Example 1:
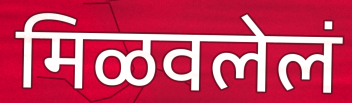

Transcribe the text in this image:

मिळवलेलं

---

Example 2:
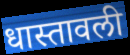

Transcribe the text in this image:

धास्तावली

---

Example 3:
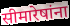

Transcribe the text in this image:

सीमारेषांना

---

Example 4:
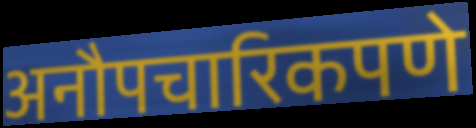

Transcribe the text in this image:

अनौपचारिकपणे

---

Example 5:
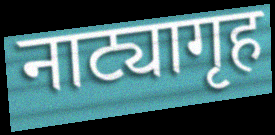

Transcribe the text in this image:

नाट्यागृह